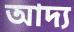
আদ্য